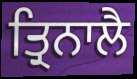
ਤ੍ਰਿਨਾਲੈ